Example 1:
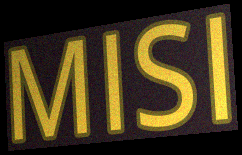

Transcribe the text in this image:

MISI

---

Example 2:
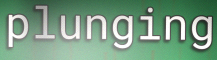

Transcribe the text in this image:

plunging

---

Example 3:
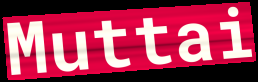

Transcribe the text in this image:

Muttai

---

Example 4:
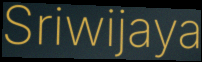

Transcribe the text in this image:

Sriwijaya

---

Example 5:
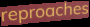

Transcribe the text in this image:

reproaches